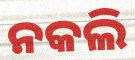
ନକଲି